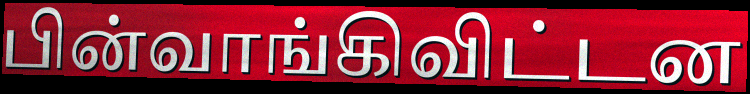
பின்வாங்கிவிட்டன